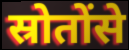
स्रोतोंसे